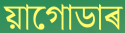
য়াগোডাৰ